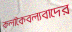
কলাকৈবল্যবাদের